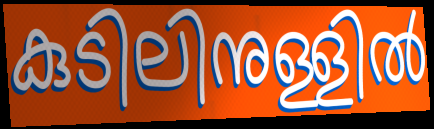
കുടിലിനുള്ളിൽ